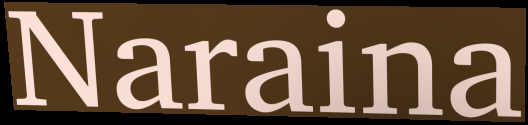
Naraina